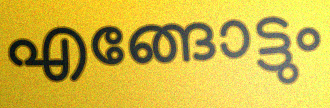
എങ്ങോട്ടും